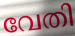
വേതി